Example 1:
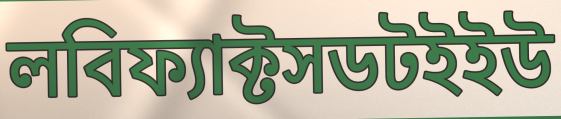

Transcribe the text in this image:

লবিফ্যাক্টসডটইইউ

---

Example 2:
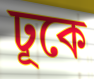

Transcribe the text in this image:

ঢূকে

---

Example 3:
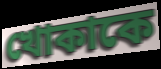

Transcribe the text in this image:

খোকাকে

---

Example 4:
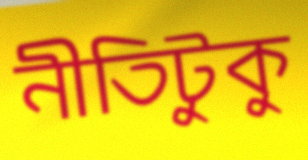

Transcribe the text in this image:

নীতিটুকু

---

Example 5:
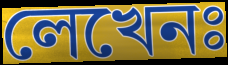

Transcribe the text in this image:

লেখেনঃ